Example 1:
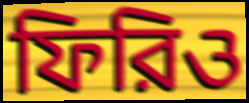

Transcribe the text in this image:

ফিরিও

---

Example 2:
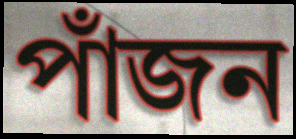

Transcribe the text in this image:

পাঁজন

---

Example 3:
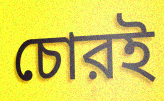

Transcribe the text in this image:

চোরই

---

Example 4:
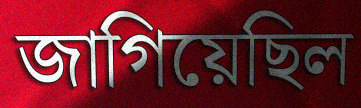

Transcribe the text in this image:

জাগিয়েছিল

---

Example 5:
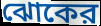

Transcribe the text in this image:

ঝোকের